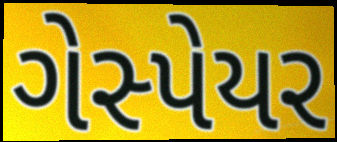
ગેસ્પેયર